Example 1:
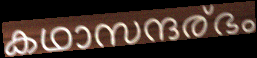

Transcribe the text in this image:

കഥാസന്ദര്ഭം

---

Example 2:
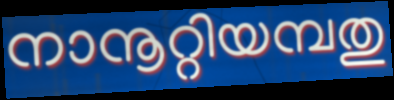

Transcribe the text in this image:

നാനൂറ്റിയമ്പതു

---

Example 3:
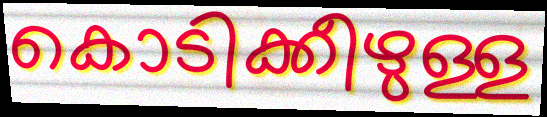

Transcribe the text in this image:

കൊടിക്കീഴുള്ള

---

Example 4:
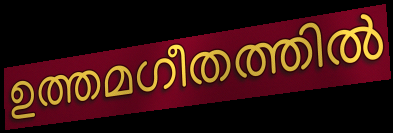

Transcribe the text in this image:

ഉത്തമഗീതത്തിൽ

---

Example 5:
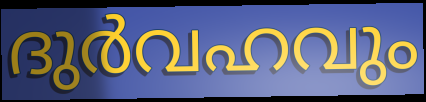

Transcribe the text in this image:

ദുർവഹവും